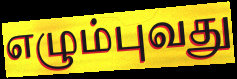
எழும்புவது